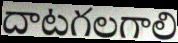
దాటగలగాలి